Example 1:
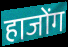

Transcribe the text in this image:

हाजोंग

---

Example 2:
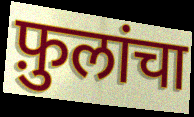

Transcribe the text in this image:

फ़ुलांचा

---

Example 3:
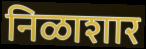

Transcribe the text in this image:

निळाशार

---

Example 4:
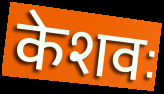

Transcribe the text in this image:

केशवः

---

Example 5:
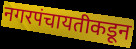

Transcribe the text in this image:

नगरपंचायतीकडून